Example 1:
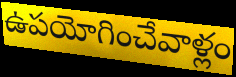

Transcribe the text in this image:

ఉపయోగించేవాళ్లం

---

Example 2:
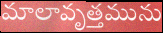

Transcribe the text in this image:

మాలావృత్తమును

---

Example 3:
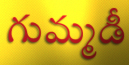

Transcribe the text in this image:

గుమ్మడీ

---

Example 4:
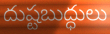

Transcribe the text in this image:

దుష్టబుద్ధులు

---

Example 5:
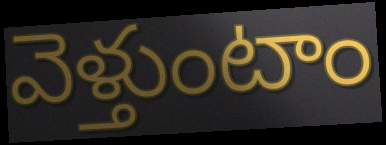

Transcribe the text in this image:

వెళ్తుంటాం